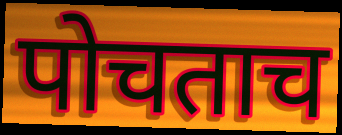
पोचताच